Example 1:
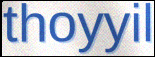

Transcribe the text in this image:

thoyyil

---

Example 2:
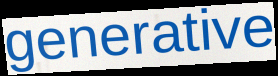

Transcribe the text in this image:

generative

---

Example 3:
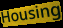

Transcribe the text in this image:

Housing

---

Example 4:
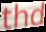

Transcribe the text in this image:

thd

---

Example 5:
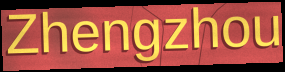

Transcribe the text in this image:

Zhengzhou